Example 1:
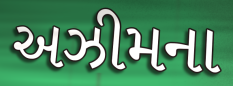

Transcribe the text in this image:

અઝીમના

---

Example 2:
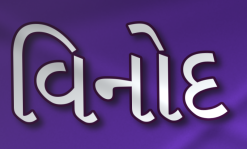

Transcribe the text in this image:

વિનોદ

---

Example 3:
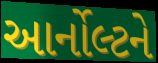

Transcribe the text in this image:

આર્નોલ્ટને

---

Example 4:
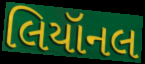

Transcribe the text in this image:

લિયૉનલ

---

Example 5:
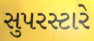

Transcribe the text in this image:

સુપરસ્ટારે